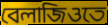
বেলাজিওতে